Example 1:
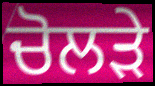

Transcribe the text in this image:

ਚੋਲੜੇ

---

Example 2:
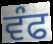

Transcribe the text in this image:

ਵੰਫ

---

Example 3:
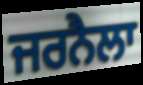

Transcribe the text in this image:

ਜਰਨੈਲਾ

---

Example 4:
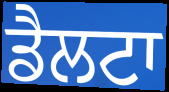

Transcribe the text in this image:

ਡੈਲਟਾ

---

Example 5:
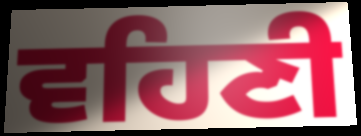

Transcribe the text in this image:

ਵਹਿਣੀ